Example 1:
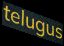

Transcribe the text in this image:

telugus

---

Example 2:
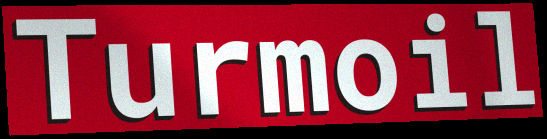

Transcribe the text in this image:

Turmoil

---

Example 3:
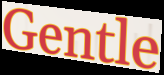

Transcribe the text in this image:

Gentle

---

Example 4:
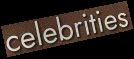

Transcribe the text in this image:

celebrities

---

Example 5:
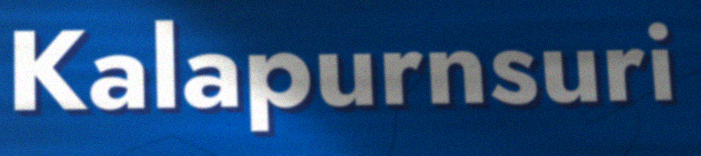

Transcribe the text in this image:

Kalapurnsuri